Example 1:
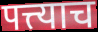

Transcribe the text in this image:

पत्त्याच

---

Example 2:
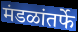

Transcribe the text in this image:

मंडळांतर्फे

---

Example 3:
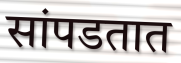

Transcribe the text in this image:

सांपडतात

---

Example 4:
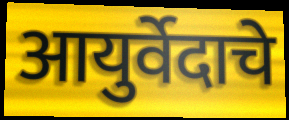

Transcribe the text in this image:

आयुर्वेदाचे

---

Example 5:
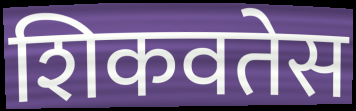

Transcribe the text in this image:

शिकवतेस